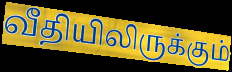
வீதியிலிருக்கும்